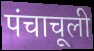
पंचाचूली